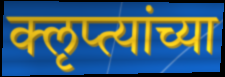
क्लृप्त्यांच्या